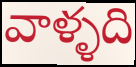
వాళ్ళది